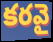
కరవై